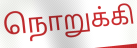
நொறுக்கி